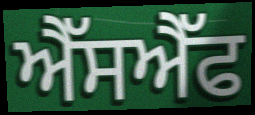
ਐੱਸਐੱਫ